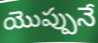
యొప్పునే